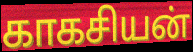
காகசியன்